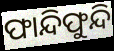
ଫାନ୍ଦିଫୁନ୍ଦି